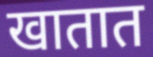
खातात